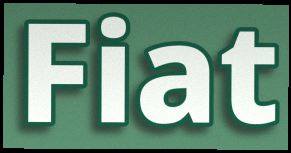
Fiat